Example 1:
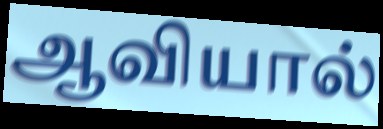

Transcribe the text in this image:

ஆவியால்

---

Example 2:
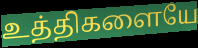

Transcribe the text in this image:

உத்திகளையே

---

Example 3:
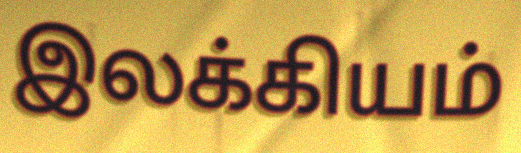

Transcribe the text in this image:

இலக்கியம்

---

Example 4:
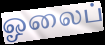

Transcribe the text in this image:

ஓலைப்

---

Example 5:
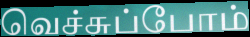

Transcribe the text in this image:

வெச்சுப்போம்